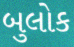
બુલોક